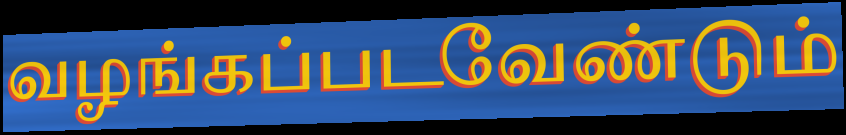
வழங்கப்படவேண்டும்